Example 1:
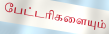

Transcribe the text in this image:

பேட்டரிகளையும்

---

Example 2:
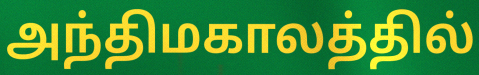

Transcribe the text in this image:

அந்திமகாலத்தில்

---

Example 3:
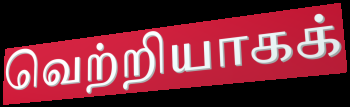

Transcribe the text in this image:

வெற்றியாகக்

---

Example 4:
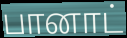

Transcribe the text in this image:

பானாட்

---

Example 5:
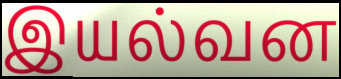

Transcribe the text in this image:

இயல்வன